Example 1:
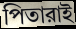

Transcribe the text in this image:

পিতারাই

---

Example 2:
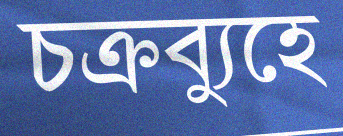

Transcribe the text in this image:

চক্রব্যুহে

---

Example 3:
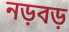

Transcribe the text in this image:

নড়বড়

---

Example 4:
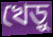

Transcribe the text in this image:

খেড়ু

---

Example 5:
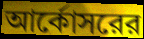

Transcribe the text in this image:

আর্কোসরের